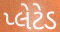
પ્લેટેડ